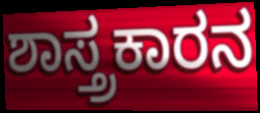
ಶಾಸ್ತ್ರಕಾರನ